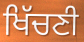
ਖਿੱਚਣੀ